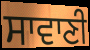
ਸਾਵਾਣੀ